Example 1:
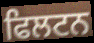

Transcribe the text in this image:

ਫਿਲਟਨ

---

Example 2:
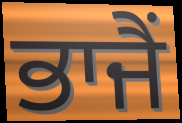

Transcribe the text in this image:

ਭਾਜੈਂ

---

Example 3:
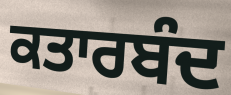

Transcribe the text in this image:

ਕਤਾਰਬੰਦ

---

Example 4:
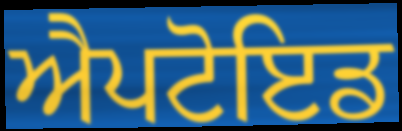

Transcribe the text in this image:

ਐਪਟੋਇਡ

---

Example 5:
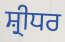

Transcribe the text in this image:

ਸ਼੍ਰੀਧਰ